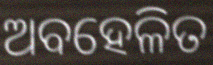
ଅବହେଳିତ